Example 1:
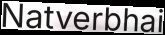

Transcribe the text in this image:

Natverbhai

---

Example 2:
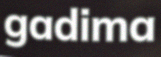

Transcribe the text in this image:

gadima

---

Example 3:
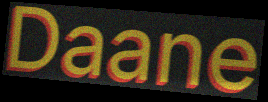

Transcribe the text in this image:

Daane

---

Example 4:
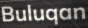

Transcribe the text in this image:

Buluqan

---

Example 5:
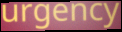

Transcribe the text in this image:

urgency